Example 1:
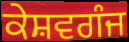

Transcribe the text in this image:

ਕੇਸ਼ਵਗੰਜ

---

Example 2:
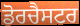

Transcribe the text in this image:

ਡੋਰਚੈਸਟਰ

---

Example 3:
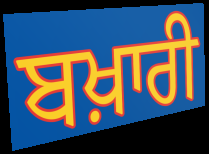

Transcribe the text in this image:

ਬਖ਼ਾਰੀ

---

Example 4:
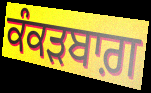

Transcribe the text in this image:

ਕੰਕੜਬਾਗ਼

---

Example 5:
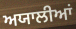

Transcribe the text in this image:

ਅਯਾਲੀਆਂ